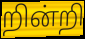
றின்றி